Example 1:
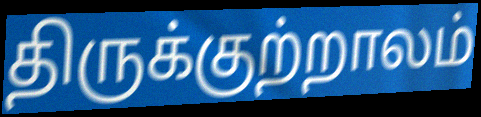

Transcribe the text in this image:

திருக்குற்றாலம்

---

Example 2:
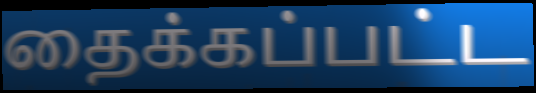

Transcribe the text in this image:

தைக்கப்பட்ட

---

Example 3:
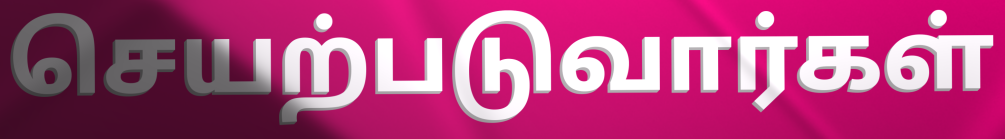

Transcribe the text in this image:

செயற்படுவார்கள்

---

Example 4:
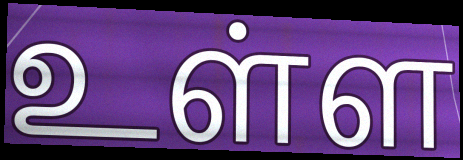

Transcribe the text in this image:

உள்ள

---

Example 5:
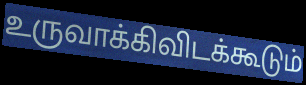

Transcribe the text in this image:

உருவாக்கிவிடக்கூடும்